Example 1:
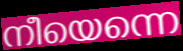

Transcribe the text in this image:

നീയെന്നെ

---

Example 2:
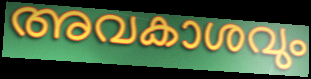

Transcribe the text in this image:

അവകാശവും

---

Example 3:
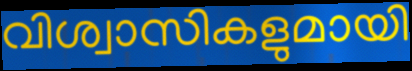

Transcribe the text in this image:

വിശ്വാസികളുമായി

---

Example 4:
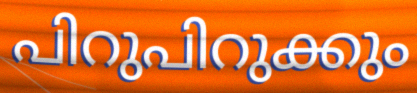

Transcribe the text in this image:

പിറുപിറുക്കും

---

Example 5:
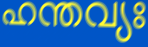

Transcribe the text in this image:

ഹന്തവ്യഃ